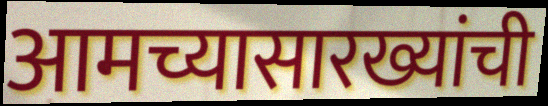
आमच्यासारख्यांची